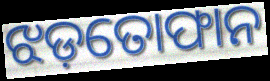
ଝଡ଼ତୋଫାନ